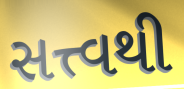
સત્ત્વથી